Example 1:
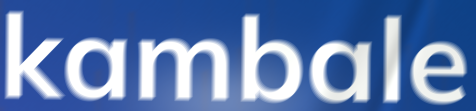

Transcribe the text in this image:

kambale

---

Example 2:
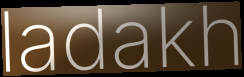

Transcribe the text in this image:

ladakh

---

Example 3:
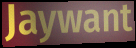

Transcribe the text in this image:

Jaywant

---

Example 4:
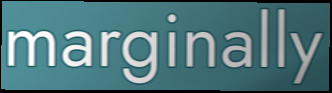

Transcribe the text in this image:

marginally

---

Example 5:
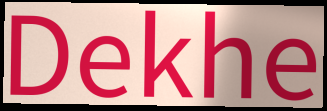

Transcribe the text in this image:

Dekhe